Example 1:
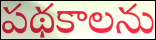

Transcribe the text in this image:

పథకాలను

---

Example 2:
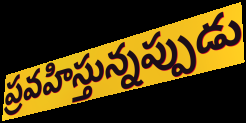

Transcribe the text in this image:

ప్రవహిస్తున్నప్పుడు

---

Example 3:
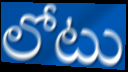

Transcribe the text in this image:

లోటు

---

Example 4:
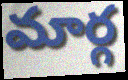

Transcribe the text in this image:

మార్గ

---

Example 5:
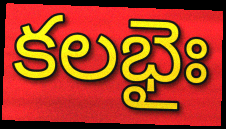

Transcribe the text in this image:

కలభైః